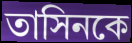
তাসিনকে